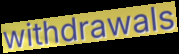
withdrawals